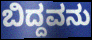
ಬಿದ್ದವನು